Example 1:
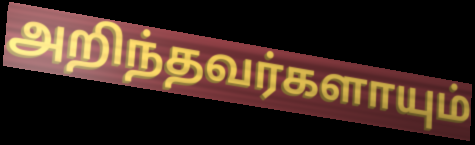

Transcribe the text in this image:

அறிந்தவர்களாயும்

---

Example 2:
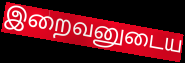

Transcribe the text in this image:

இறைவனுடைய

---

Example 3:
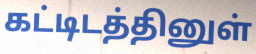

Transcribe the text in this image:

கட்டிடத்தினுள்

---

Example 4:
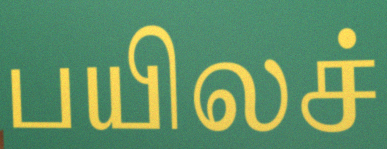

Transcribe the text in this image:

பயிலச்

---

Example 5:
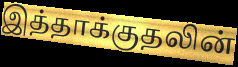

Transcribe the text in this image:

இத்தாக்குதலின்